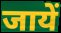
जायें